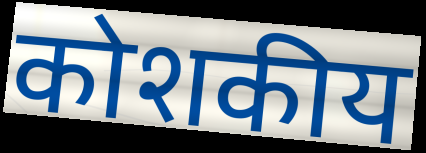
कोशकीय